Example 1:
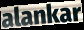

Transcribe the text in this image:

alankar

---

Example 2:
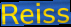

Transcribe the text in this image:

Reiss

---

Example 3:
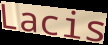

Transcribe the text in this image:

Lacis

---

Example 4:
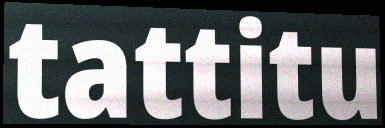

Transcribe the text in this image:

tattitu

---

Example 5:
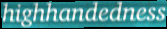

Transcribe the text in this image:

highhandedness